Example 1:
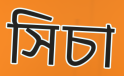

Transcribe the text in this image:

সিচা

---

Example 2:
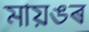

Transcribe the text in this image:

মায়ঙৰ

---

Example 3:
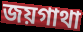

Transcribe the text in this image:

জয়গাথা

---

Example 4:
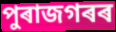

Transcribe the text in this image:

পুৰাজগৰৰ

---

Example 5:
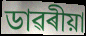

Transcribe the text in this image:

ডাৱৰীয়া